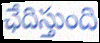
ఛేదిస్తుంది